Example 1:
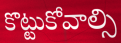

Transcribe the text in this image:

కొట్టుకోవాల్సి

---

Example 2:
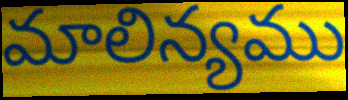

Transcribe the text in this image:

మాలిన్యము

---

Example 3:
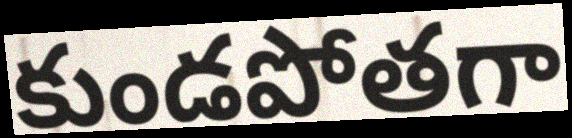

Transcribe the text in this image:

కుండపోతగా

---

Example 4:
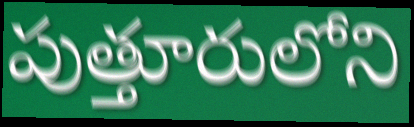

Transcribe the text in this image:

పుత్తూరులోని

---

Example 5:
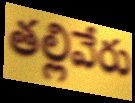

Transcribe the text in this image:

తల్లివేరు